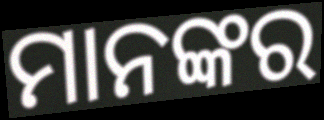
ମାନଙ୍କର